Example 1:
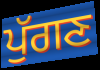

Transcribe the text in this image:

ਪੁੱਗਣ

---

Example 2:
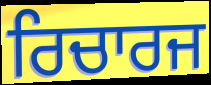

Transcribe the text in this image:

ਰਿਚਾਰਜ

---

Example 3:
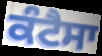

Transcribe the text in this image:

ਕੰਟੈਸਾ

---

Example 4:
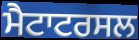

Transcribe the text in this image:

ਮੈਟਾਟਰਸਲ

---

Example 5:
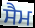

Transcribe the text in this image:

ਸੈਮ